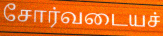
சோர்வடையச்